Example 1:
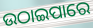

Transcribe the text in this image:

ଉଠାଇପାରେ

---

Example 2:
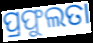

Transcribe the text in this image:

ପ୍ରଫୁଲତା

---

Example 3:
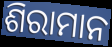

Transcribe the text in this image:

ଶିରାମାନ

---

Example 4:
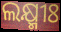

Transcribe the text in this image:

ଲକ୍ଷ୍ମୀଃ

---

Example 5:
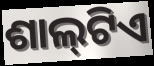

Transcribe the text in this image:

ଶାଲ୍‌ଟିଏ